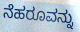
ನೆಹರೂವನ್ನು